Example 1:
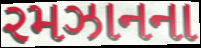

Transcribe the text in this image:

રમઝાનના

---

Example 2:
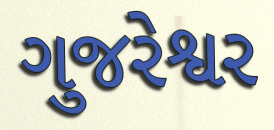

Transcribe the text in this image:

ગુજરેશ્વર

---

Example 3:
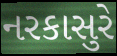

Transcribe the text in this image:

નરકાસુરે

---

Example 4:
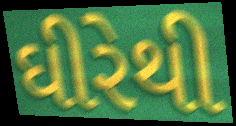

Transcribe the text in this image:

ઘીરેથી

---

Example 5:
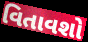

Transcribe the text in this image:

વિતાવશો